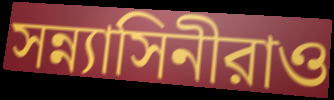
সন্ন্যাসিনীরাও